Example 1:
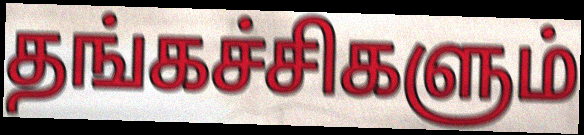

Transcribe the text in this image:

தங்கச்சிகளும்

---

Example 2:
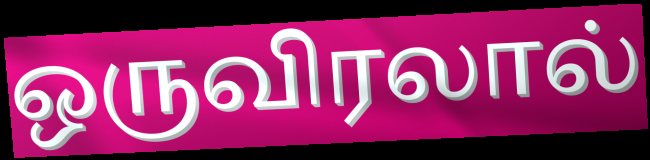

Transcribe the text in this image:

ஒருவிரலால்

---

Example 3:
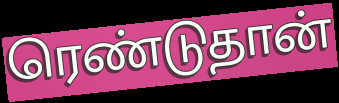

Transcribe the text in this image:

ரெண்டுதான்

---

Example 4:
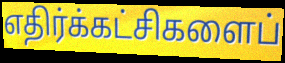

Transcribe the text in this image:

எதிர்க்கட்சிகளைப்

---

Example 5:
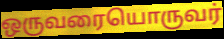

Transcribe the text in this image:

ஒருவரையொருவர்